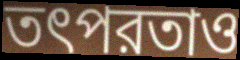
তৎপরতাও